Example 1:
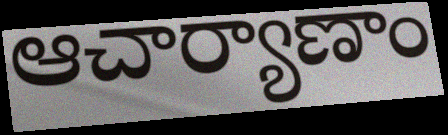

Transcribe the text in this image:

ఆచార్యాణాం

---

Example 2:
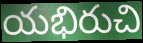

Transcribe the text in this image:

యభిరుచి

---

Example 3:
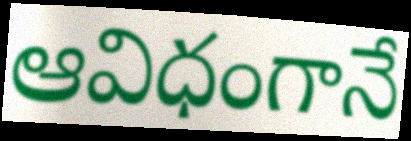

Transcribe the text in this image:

ఆవిధంగానే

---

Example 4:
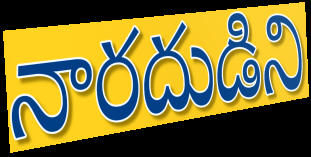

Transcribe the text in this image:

నారదుడిని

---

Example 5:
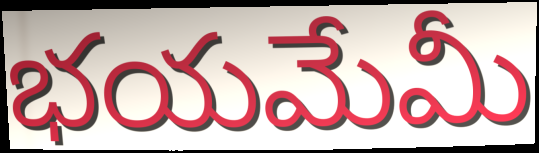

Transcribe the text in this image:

భయమేమీ